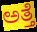
ಅತ್ತೆ